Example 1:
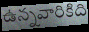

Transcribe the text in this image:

ఉన్నవారికిది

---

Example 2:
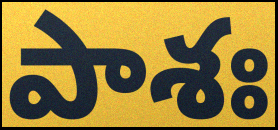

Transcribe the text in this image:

పాశః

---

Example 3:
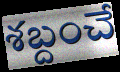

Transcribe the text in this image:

శబ్దంచే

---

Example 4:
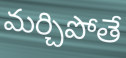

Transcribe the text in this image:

మర్చిపోతే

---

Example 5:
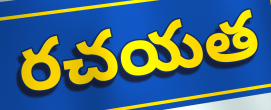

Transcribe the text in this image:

రచయత